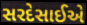
સરદેસાઈએ